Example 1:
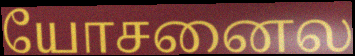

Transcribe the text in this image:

யோசனைல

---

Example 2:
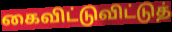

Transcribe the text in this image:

கைவிட்டுவிட்டுத்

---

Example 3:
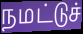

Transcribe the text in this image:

நமட்டுச்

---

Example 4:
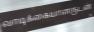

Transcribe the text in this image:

வாடிக்கையாளருடன்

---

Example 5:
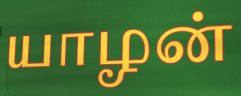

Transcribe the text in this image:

யாழன்